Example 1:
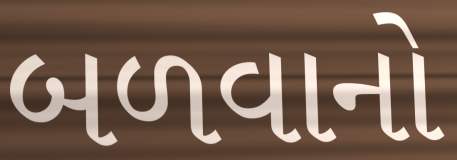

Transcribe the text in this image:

બળવાનો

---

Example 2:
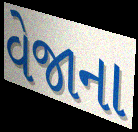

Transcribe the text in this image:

વેજાના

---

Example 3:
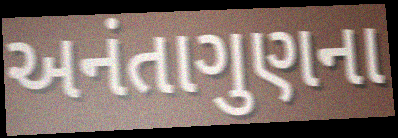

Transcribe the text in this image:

અનંતાગુણના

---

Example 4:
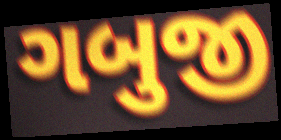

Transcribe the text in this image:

ગબુજી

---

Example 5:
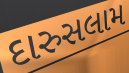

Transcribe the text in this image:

દારુસલામ